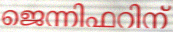
ജെന്നിഫറിന്